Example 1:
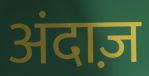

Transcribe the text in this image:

अंदाज़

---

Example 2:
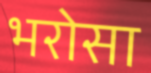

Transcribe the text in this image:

भरोसा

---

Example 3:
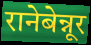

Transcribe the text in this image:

रानेबेन्नूर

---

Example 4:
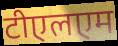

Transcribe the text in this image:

टीएलएम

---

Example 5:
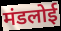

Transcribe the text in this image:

मंडलोई